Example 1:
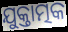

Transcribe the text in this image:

ଯୁକ୍ତାତ୍ମକ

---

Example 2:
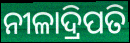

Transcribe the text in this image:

ନୀଳାଦ୍ରିପତି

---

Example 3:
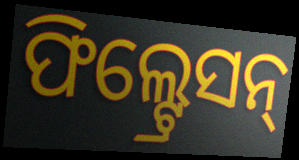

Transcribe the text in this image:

ଫିଲ୍ଟ୍ରେସନ୍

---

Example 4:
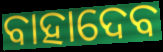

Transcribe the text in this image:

ବାହାଦେବ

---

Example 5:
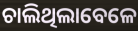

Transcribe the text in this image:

ଚାଲିଥିଲାବେଳେ